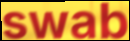
swab